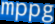
mppg